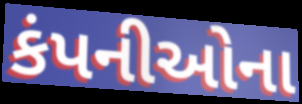
કંપનીઓના